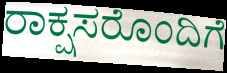
ರಾಕ್ಷಸರೊಂದಿಗೆ